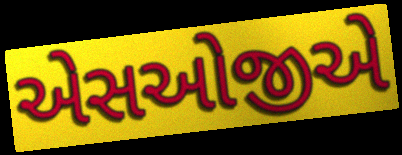
એસઓજીએ